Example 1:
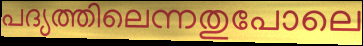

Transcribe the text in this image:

പദ്യത്തിലെന്നതുപോലെ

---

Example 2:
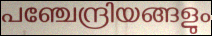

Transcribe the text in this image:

പഞ്ചേന്ദ്രിയങ്ങളും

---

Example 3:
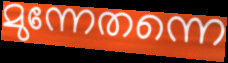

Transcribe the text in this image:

മുന്നേതന്നെ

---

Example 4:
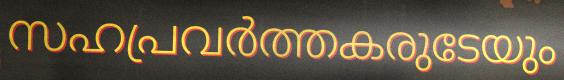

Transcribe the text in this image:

സഹപ്രവർത്തകരുടേയും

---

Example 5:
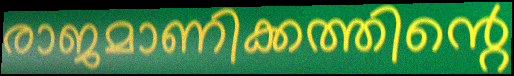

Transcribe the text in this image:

രാജമാണിക്കത്തിന്റെ